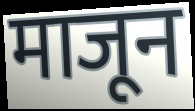
माजून